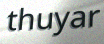
thuyar